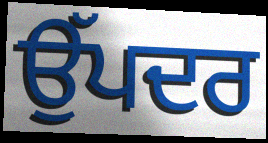
ਉੱਪਦਰ